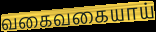
வகைவகையாய்